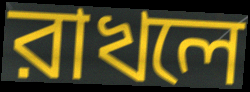
রাখলে